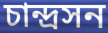
চান্দ্রসন